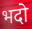
भदो